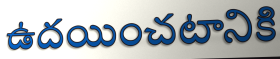
ఉదయించటానికి